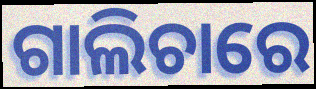
ଗାଲିଚାରେ